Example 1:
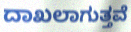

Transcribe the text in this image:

ದಾಖಲಾಗುತ್ತವೆ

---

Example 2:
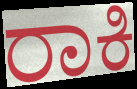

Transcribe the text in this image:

ರಾಕಿ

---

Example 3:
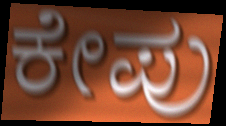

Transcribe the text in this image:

ಕೇಪು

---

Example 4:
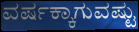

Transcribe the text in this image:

ವರ್ಷಕ್ಕಾಗುವಷ್ಟು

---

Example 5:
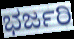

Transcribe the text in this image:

ಭರ್ಜರಿ